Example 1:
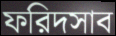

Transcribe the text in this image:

ফরিদসাব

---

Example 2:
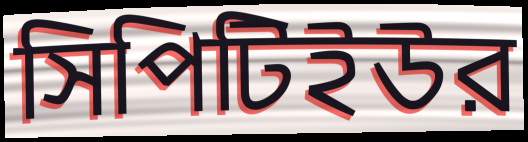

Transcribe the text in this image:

সিপিটিইউর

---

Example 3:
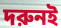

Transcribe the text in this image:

দরুনই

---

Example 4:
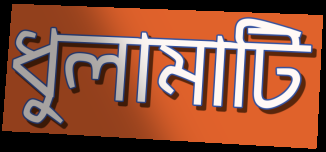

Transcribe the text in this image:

ধুলামাটি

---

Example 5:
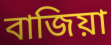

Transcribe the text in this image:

বাজিয়া